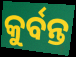
କୁର୍ବନ୍ତ